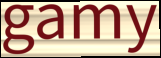
gamy